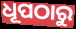
ଧୂପଠାରୁ